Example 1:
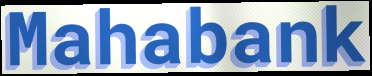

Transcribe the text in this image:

Mahabank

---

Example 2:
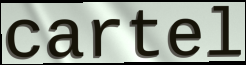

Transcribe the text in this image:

cartel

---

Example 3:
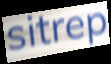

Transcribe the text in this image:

sitrep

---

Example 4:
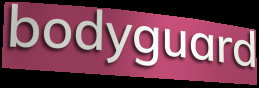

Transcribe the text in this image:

bodyguard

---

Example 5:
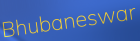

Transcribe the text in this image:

Bhubaneswar